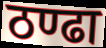
ठण्ढा